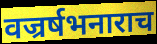
वज्रर्षभनाराच